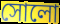
সোলো